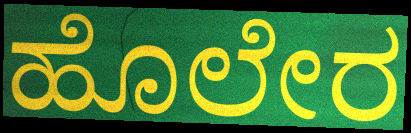
ಹೊಲೇರ